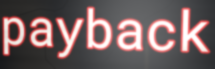
payback